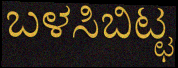
ಬಳಸಿಬಿಟ್ಟ